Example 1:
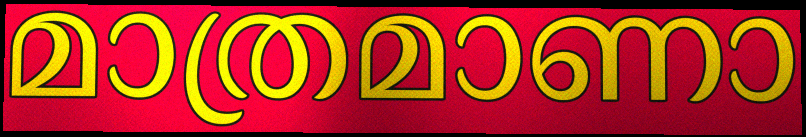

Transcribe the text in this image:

മാത്രമാണാ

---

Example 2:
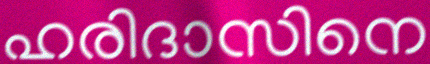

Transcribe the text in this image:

ഹരിദാസിനെ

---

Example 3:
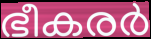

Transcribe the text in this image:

ഭീകരർ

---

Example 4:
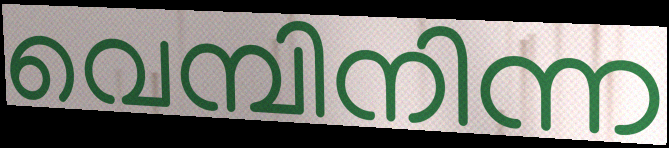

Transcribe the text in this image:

വെമ്പിനിന്ന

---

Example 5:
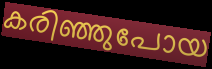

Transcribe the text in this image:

കരിഞ്ഞുപോയ